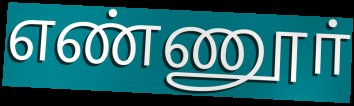
எண்ணூர்